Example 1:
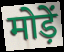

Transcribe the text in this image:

मोड़ें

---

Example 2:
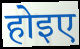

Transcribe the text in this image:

होइए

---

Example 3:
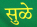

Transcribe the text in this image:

सुळे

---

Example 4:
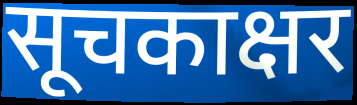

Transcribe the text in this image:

सूचकाक्षर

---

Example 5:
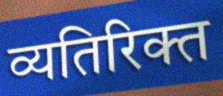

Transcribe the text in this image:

व्यतिरिक्त